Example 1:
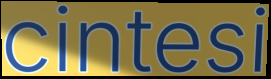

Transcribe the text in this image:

cintesi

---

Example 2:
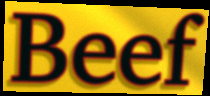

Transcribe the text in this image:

Beef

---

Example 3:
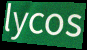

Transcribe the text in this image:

lycos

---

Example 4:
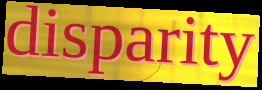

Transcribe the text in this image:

disparity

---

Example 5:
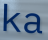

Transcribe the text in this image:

ka